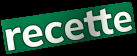
recette